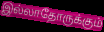
இல்லாதோருக்கும்